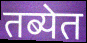
तब्येत